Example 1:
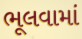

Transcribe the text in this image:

ભૂલવામાં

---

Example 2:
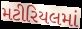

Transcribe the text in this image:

મટીરિયલમાં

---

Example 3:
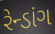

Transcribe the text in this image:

રેન્ડાંગ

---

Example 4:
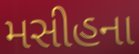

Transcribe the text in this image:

મસીહના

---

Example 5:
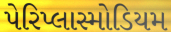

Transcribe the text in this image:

પેરિપ્લાસ્મોડિયમ